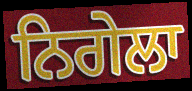
ਨਿਗੇਲਾ